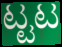
ಟ್ಟಟ